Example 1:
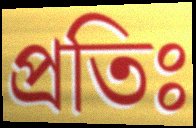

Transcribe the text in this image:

প্রতিঃ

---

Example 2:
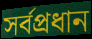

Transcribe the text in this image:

সর্বপ্রধান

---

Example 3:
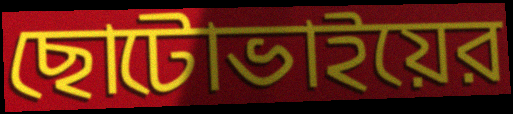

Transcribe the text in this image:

ছোটোভাইয়ের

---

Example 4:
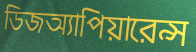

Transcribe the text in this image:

ডিজঅ্যাপিয়ারেন্স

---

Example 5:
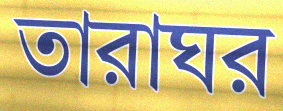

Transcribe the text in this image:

তারাঘর